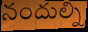
నందుల్ని